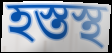
হস্তস্থ